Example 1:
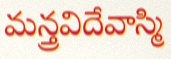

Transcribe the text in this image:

మన్త్రవిదేవాస్మి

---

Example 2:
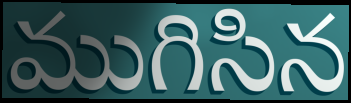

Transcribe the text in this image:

ముగిసిన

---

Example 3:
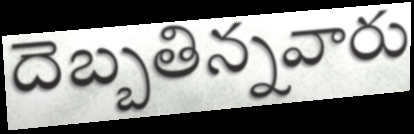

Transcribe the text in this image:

దెబ్బతిన్నవారు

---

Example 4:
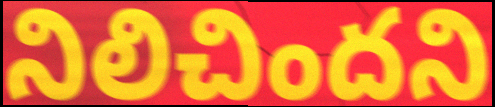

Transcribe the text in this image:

నిలిచిందని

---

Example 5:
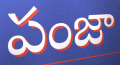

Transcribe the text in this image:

పంజా